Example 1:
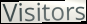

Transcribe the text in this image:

Visitors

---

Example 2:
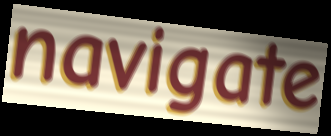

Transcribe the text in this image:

navigate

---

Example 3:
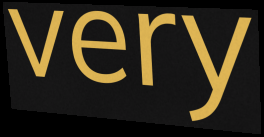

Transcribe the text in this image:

very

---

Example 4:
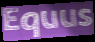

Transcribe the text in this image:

Equus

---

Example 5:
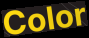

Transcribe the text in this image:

Color